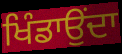
ਖਿੰਡਾਉਂਦਾ